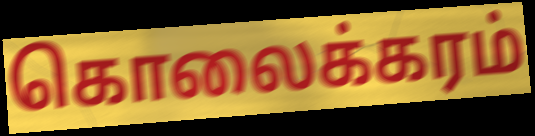
கொலைக்கரம்